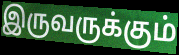
இருவருக்கும்